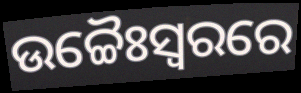
ଉଚ୍ଚୈଃସ୍ୱରରେ